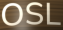
OSL